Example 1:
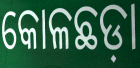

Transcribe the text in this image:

କୋଳଛଡ଼ା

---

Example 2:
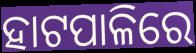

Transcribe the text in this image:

ହାଟପାଳିରେ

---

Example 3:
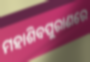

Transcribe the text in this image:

ମହାଶିବପୁରାଣରେ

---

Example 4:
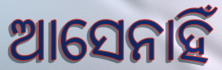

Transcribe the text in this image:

ଆସେନାହିଁ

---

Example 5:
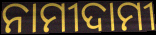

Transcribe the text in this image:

ନାମୀଦାମୀ